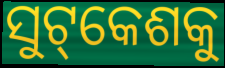
ସୁଟ୍‌କେଶକୁ